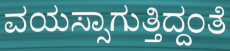
ವಯಸ್ಸಾಗುತ್ತಿದ್ದಂತೆ